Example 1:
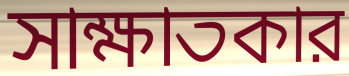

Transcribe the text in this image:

সাক্ষাতকার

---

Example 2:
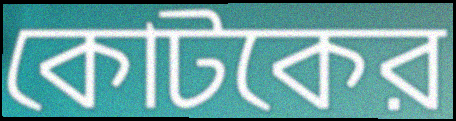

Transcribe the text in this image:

কোটকের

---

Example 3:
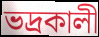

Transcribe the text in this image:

ভদ্রকালী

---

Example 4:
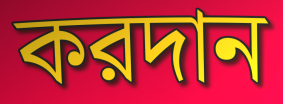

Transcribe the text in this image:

করদান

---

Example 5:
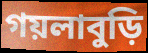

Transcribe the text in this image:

গয়লাবুড়ি